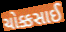
ચોક્કસાઈ